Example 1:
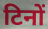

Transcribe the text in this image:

टिनों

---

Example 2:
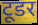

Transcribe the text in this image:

टूडर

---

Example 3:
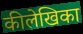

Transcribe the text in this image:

कीलेखिका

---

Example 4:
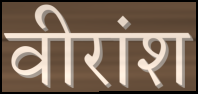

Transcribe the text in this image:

वीरांश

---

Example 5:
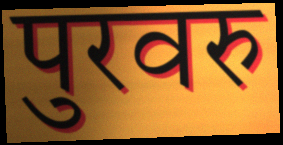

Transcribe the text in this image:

पुरवरु